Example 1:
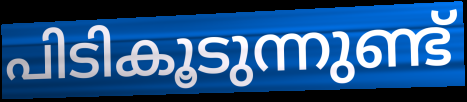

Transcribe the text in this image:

പിടികൂടുന്നുണ്ട്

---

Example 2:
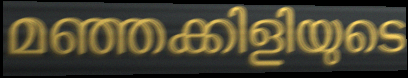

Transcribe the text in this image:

മഞ്ഞക്കിളിയുടെ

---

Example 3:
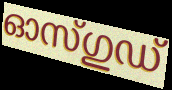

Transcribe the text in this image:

ഓസ്ഗുഡ്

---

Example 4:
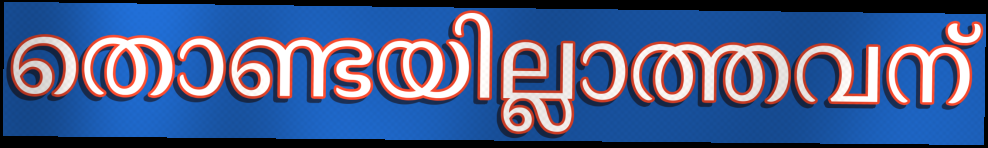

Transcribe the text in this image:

തൊണ്ടയില്ലാത്തവന്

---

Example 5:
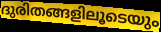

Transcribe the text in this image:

ദുരിതങ്ങളിലൂടെയും